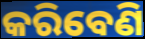
କରିବେଣି